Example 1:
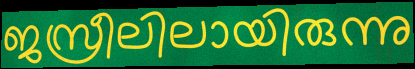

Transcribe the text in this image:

ജസ്രീലിലായിരുന്നു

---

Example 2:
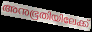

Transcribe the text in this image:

അനുഭൂതിയിലേക്ക്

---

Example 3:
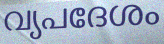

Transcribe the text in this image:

വ്യപദേശം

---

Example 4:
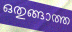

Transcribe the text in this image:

ഒതുങ്ങാത്ത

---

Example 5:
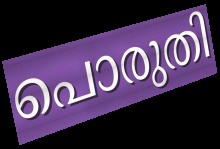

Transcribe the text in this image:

പൊരുതി